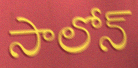
సాలోన్